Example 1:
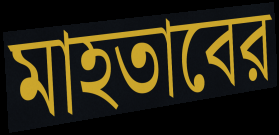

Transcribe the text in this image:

মাহতাবের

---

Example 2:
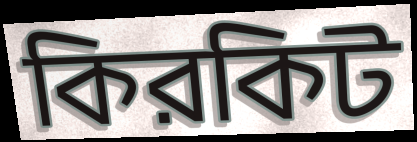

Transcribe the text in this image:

কিরকিট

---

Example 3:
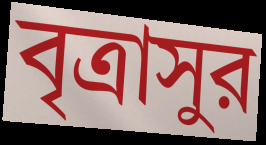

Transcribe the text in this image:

বৃত্রাসুর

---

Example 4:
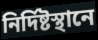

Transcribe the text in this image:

নির্দিষ্টস্থানে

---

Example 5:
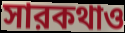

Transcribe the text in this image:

সারকথাও